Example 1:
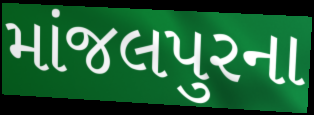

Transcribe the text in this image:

માંજલપુરના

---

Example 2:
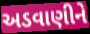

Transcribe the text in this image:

અડવાણીને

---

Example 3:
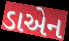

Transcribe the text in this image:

ડાએન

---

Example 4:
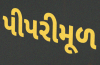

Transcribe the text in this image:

પીપરીમૂળ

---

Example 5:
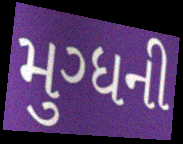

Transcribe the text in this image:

મુગ્ધની